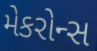
મેકરોન્સ